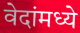
वेदांमध्ये